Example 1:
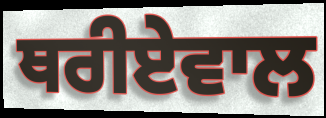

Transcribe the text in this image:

ਥਰੀਏਵਾਲ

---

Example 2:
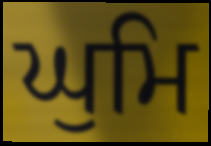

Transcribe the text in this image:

ਘੁਮਿ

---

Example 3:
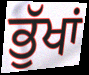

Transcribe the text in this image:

ਭੁੱਖਾਂ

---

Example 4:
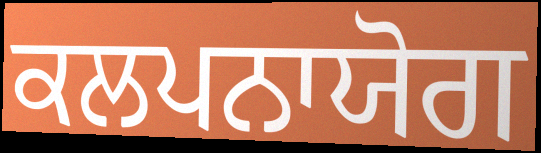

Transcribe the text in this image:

ਕਲਪਨਾਯੋਗ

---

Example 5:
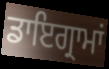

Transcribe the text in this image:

ਡਾਇਗ੍ਰਾਮਾਂ